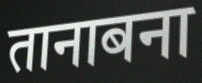
तानाबना